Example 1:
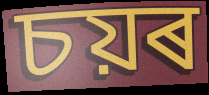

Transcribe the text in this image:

চয়ৰ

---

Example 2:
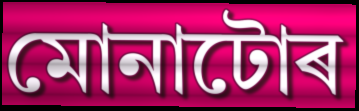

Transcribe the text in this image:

মোনাটোৰ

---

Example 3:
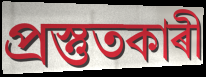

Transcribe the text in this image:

প্ৰস্তুতকাৰী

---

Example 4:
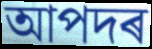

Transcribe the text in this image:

আপদৰ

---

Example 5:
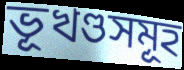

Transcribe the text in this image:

ভূখণ্ডসমূহ